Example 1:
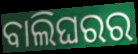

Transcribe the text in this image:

ବାଲିଘରର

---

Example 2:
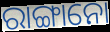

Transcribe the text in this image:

ରାଙ୍ଗାନୋ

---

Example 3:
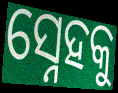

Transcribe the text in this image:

ସ୍ନେହକୁ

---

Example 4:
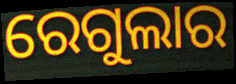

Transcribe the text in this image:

ରେଗୁଲାର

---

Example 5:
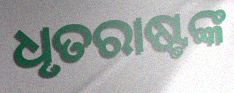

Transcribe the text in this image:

ଧୃତରାଷ୍ଟଙ୍କ